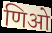
णिओ